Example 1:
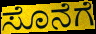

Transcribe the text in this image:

ಸೊನೆಗೆ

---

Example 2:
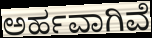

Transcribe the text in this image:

ಅರ್ಹವಾಗಿವೆ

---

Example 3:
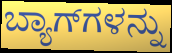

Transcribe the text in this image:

ಬ್ಯಾಗ್‍ಗಳನ್ನು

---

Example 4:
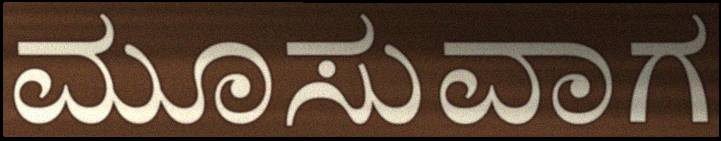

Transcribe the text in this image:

ಮೂಸುವಾಗ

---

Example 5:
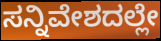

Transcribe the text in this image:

ಸನ್ನಿವೇಶದಲ್ಲೇ